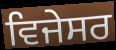
ਵਿਜੇਸਰ